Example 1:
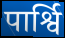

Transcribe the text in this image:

पार्श्वि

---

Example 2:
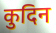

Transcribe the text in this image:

कुदिन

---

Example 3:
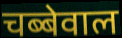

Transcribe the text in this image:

चब्बेवाल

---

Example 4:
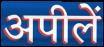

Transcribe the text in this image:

अपीलें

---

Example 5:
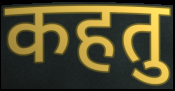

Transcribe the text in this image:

कहतु